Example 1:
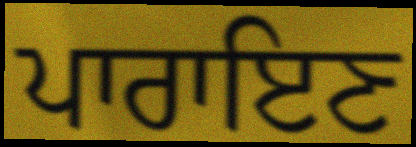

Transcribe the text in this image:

ਪਾਰਾਇਣ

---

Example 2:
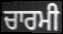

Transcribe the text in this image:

ਚਾਰਮੀ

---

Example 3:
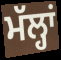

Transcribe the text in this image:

ਮੱਲ੍ਹਾਂ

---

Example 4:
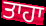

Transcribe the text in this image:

ਤਾਹਾ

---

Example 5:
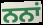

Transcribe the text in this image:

ਨਨਾਂ